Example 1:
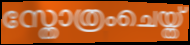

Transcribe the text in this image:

സ്തോത്രംചെയ്ത്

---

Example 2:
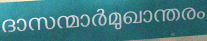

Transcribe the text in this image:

ദാസന്മാർമുഖാന്തരം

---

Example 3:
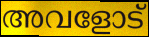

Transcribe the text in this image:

അവളോട്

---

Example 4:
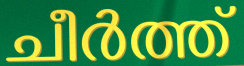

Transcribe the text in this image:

ചീർത്ത്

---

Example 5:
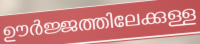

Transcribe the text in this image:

ഊർജ്ജത്തിലേക്കുള്ള